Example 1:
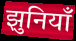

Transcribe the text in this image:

झुनियाँ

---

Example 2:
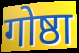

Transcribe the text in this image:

गोष्ठा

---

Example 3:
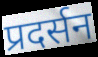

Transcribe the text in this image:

प्रदर्सन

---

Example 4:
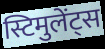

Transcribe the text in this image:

स्टिमुलेंट्स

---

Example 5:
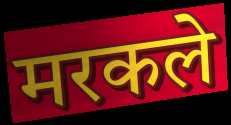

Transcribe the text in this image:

मरकले